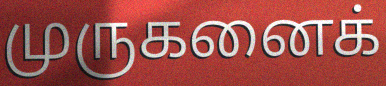
முருகனைக்